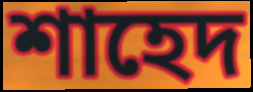
শাহেদ